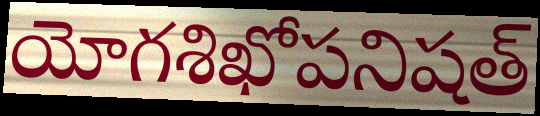
యోగశిఖోపనిషత్